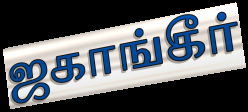
ஜகாங்கீர்